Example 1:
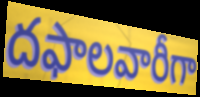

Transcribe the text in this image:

దఫాలవారీగా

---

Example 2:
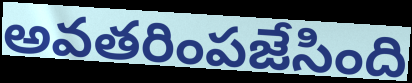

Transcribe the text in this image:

అవతరింపజేసింది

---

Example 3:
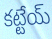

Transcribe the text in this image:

కట్టేయ్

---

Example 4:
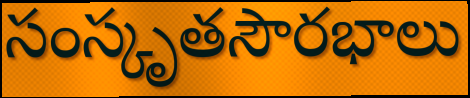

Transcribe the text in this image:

సంస్కృతసౌరభాలు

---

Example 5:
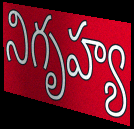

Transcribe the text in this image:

నిగృహ్య